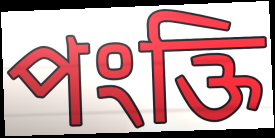
পংক্তি